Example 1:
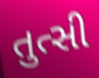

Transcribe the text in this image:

તુત્સી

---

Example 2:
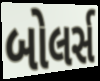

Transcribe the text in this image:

બોલર્સ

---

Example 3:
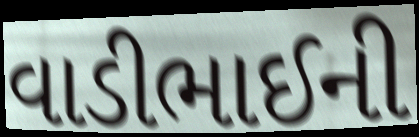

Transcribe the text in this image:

વાડીભાઈની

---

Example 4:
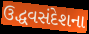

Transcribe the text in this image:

ઉદ્ધવસંદેશના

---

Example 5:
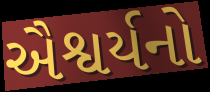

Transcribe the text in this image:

ઐશ્વર્યનો